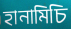
হানামিচি